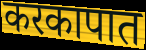
करकापात